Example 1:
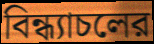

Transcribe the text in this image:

বিন্ধ্যাচলের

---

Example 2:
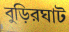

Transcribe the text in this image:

বুড়িরঘাট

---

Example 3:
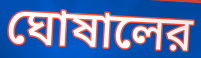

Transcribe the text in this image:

ঘোষালের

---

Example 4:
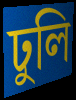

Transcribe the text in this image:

ঢুলি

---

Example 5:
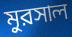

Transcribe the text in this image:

মুরসাল